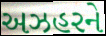
અઝહરને